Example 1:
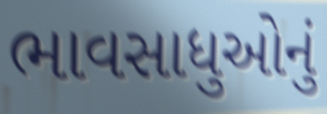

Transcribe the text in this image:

ભાવસાધુઓનું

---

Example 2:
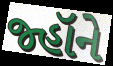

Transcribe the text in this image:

જ્હૉને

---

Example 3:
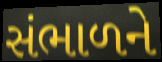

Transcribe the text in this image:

સંભાળને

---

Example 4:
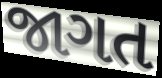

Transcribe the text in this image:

જાગત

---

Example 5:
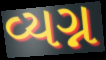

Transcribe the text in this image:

વ્યગ્ન